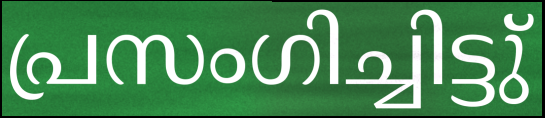
പ്രസംഗിച്ചിട്ടു്